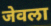
जेवला